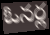
ఓనర్ల